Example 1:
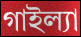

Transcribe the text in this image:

গাইল্যা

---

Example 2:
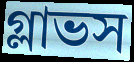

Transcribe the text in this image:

গ্লাভস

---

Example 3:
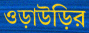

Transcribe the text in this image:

ওড়াউড়ির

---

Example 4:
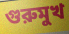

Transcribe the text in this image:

গুরুমুখ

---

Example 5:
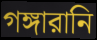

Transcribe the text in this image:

গঙ্গারানি